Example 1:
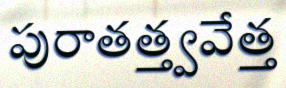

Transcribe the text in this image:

పురాతత్త్వవేత్త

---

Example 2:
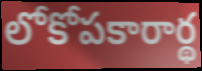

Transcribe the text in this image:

లోకోపకారార్థ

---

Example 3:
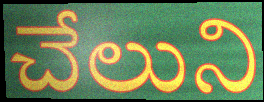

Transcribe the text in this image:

చేలుని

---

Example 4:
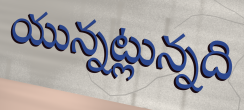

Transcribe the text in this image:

యున్నట్లున్నది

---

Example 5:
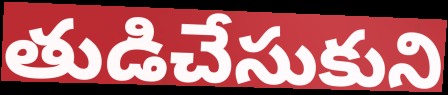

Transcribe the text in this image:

తుడిచేసుకుని